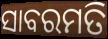
ସାବରମତି